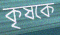
কৃষকে